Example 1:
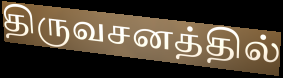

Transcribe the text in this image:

திருவசனத்தில்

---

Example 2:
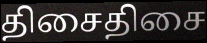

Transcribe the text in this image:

திசைதிசை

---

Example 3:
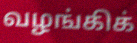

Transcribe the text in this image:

வழங்கிக்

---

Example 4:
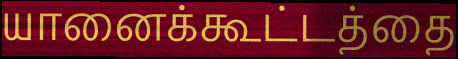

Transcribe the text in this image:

யானைக்கூட்டத்தை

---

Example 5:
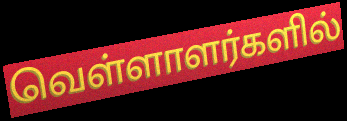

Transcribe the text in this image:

வெள்ளாளர்களில்